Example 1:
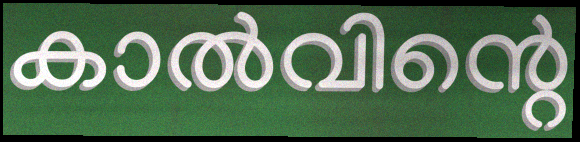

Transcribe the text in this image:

കാൽവിന്റെ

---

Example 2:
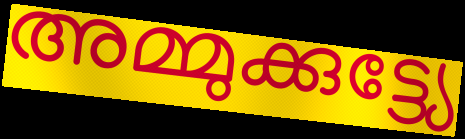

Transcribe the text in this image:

അമ്മുക്കുട്ട്യേ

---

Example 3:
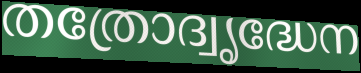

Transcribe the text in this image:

തത്രോദ്വൃദ്ധേന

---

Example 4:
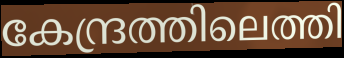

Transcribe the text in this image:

കേന്ദ്രത്തിലെത്തി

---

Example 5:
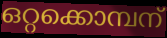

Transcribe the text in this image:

ഒറ്റക്കൊമ്പന്